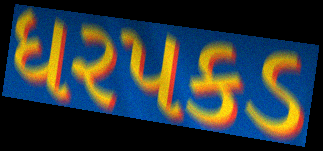
ધરપકડ